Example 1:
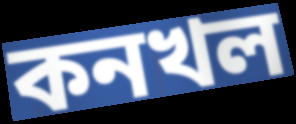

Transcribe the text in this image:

কনখল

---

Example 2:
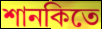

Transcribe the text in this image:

শানকিতে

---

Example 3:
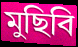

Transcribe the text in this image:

মুছিবি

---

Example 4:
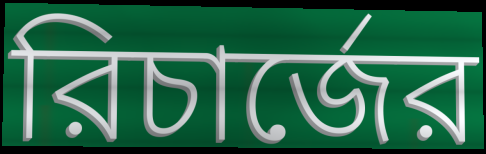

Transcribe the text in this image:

রিচার্জের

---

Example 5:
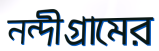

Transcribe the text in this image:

নন্দীগ্রামের